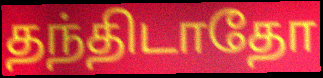
தந்திடாதோ